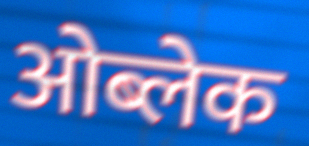
ओब्लेक